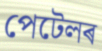
পেটেলৰ